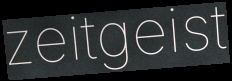
zeitgeist